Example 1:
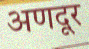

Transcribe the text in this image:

अणदूर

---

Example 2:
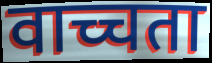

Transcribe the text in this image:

वाच्चता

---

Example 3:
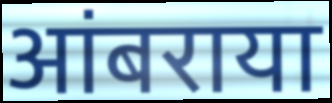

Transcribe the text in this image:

आंबराया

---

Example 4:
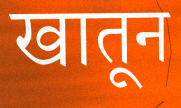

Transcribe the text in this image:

खातून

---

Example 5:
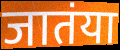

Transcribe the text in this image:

जातंया